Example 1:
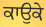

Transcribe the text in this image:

ਕਾਉਕੇ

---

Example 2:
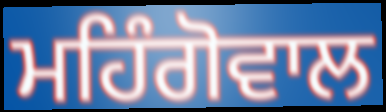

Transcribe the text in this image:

ਮਹਿੰਗੋਵਾਲ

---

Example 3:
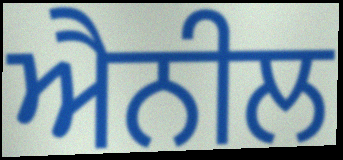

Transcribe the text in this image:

ਐਨੀਲ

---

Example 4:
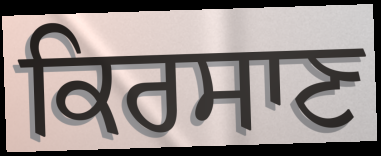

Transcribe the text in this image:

ਕਿਰਸਾਣ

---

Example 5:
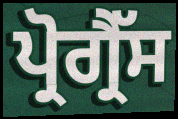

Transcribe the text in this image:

ਪ੍ਰੋਗ੍ਰੈੱਸ